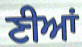
ਣੀਆਂ